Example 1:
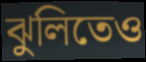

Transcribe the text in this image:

ঝুলিতেও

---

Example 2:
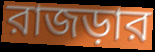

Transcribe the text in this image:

রাজড়ার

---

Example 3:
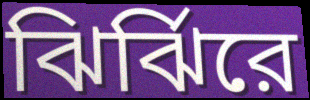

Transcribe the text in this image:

ঝির্ঝিরে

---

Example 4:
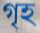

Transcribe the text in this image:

গৃহ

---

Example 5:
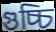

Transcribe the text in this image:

গুচ্চি